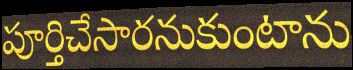
పూర్తిచేసారనుకుంటాను